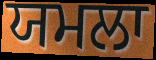
ਯਮਲਾ